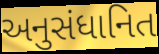
અનુસંધાનિત